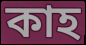
কাহ